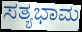
ಸತ್ಯಭಾಮ